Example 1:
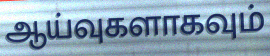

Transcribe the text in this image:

ஆய்வுகளாகவும்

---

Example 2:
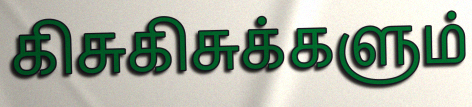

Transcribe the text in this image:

கிசுகிசுக்களும்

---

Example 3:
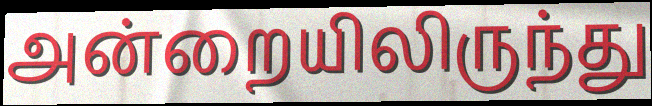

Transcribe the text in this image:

அன்றையிலிருந்து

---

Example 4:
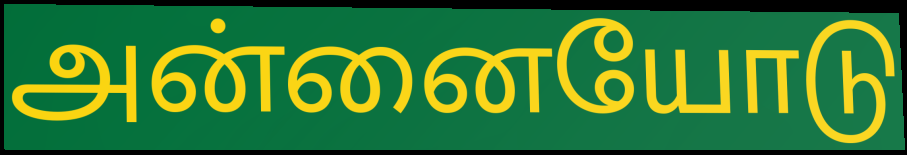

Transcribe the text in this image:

அன்னையோடு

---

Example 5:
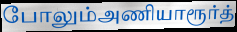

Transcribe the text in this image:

போலும்அணியாரூர்த்